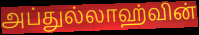
அப்துல்லாஹ்வின்